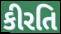
કીરતિ